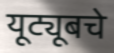
यूट्यूबचे